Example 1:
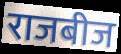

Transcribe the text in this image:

राजबीज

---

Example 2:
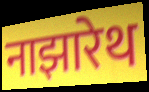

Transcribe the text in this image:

नाझारेथ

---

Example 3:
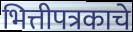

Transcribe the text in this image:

भित्तीपत्रकाचे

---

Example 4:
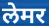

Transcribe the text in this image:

लेमर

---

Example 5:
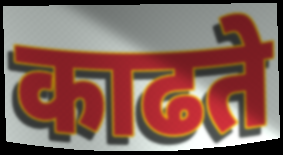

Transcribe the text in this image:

काढते